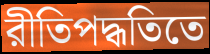
রীতিপদ্ধতিতে